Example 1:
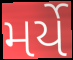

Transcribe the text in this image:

મર્યે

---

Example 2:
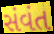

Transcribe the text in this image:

સંવંત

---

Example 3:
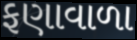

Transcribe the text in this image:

ફણાવાળા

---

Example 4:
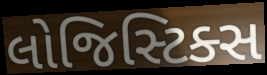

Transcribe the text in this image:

લોજિસ્ટિક્સ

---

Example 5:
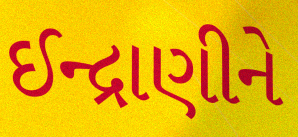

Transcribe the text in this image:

ઈન્દ્રાણીને